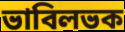
ভাবিলভক